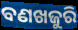
ବଣଖଜୁରି